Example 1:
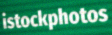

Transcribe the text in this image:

istockphotos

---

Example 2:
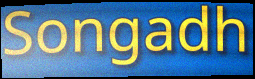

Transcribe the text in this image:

Songadh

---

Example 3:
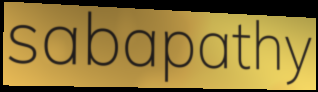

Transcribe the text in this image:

sabapathy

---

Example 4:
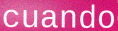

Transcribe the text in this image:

cuando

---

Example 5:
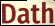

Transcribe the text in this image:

Dath